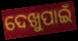
ଦେଖୁପାଇଁ